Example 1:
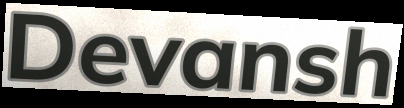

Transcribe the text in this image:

Devansh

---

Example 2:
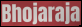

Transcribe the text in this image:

Bhojaraja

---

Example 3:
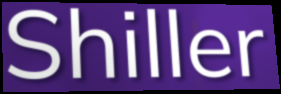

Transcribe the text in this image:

Shiller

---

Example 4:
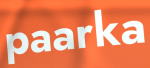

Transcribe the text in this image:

paarka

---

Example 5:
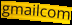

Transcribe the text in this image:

gmailcom